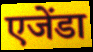
एजेंडा